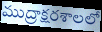
ముద్రాక్షరశాలలో